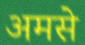
अमसे